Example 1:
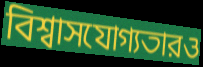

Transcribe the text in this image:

বিশ্বাসযোগ্যতারও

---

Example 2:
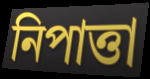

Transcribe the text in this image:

নিপাত্তা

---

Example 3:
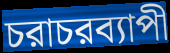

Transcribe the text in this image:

চরাচরব্যাপী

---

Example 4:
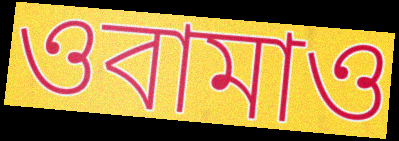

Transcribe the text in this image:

ওবামাও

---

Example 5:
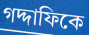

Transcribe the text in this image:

গদ্দাফিকে